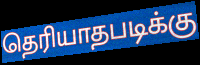
தெரியாதபடிக்கு